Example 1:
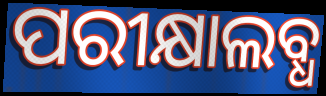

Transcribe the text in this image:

ପରୀକ୍ଷାଲବ୍ଧ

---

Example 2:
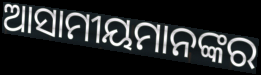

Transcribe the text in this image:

ଆସାମୀୟମାନଙ୍କର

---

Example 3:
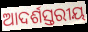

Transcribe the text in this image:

ଆଦର୍ଶସ୍ତରୀୟ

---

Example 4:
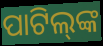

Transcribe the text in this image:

ପାଟିଲ୍‌ଙ୍କ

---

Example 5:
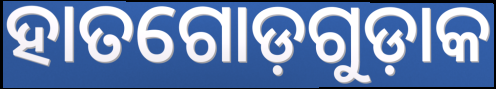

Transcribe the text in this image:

ହାତଗୋଡ଼ଗୁଡ଼ାକ